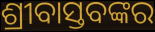
ଶ୍ରୀବାସ୍ତବଙ୍କର